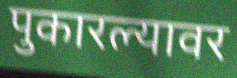
पुकारल्यावर